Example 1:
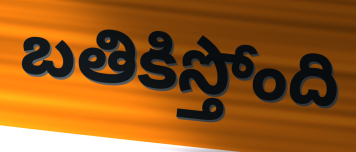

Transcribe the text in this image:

బతికిస్తోంది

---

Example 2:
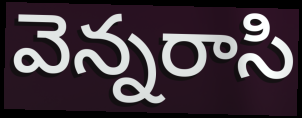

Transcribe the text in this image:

వెన్నరాసి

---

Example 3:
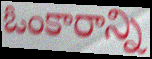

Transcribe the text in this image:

ఓంకారాన్ని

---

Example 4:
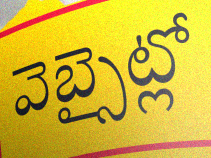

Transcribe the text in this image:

వెబ్సైట్లో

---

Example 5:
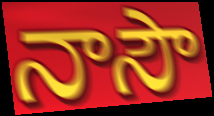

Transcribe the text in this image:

నాసౌ